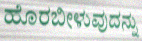
ಹೊರಬೀಳುವುದನ್ನು